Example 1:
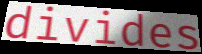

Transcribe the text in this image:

divides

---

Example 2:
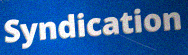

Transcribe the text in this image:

Syndication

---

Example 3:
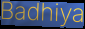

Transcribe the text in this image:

Badhiya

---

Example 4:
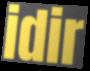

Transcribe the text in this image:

idir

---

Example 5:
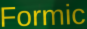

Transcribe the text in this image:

Formic